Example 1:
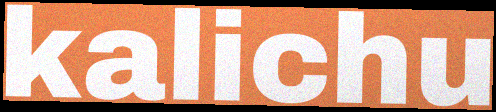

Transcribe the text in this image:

kalichu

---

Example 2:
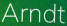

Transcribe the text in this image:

Arndt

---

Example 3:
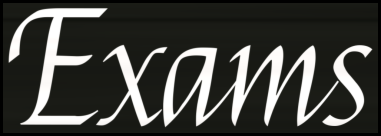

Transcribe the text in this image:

Exams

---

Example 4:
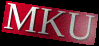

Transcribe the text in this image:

MKU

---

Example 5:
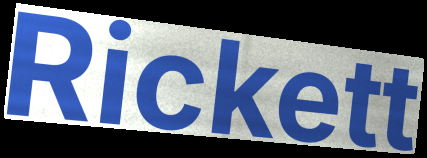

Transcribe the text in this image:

Rickett